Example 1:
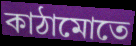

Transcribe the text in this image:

কাঠামোতে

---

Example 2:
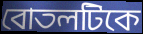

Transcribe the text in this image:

বোতলটিকে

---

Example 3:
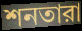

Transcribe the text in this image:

শনতারা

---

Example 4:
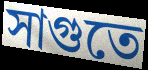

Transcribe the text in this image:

সাগুতে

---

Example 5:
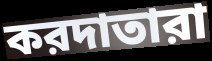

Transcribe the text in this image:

করদাতারা